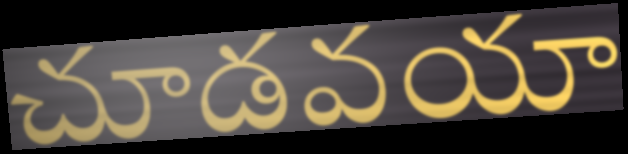
చూడవయా